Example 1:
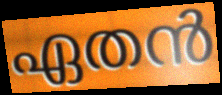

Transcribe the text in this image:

ഏതൻ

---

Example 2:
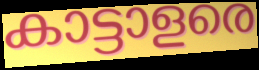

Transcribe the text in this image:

കാട്ടാളരെ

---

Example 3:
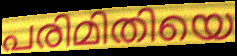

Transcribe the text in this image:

പരിമിതിയെ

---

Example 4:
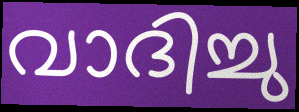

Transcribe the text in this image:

വാദിച്ചു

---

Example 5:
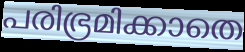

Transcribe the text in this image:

പരിഭ്രമിക്കാതെ